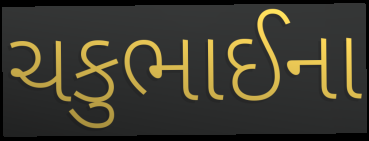
ચકુભાઈના